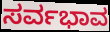
ಸರ್ವಭಾವ